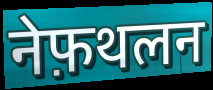
नेफ़थलन